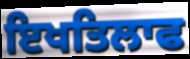
ਇਖਤਿਲਾਫ